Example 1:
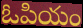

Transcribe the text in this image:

ఓపియం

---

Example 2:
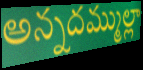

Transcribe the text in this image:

అన్నదమ్ముల్లా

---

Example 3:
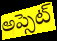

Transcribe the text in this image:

అప్సెట్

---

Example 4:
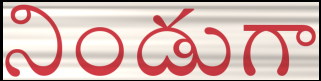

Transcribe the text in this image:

నిండుగా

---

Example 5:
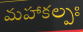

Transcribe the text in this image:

మహాకల్పః